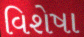
વિશેષા